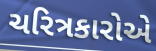
ચરિત્રકારોએ